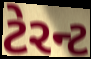
ટેરન્ટ